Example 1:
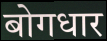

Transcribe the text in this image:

बोगधार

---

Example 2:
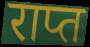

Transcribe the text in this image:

राप्त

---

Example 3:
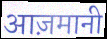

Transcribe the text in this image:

आज़मानी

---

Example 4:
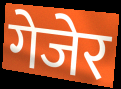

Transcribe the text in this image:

गेजेर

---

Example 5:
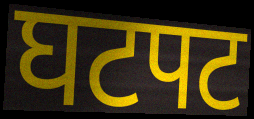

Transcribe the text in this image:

घटपट